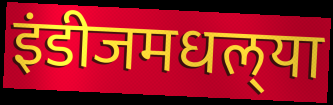
इंडीजमधल्या